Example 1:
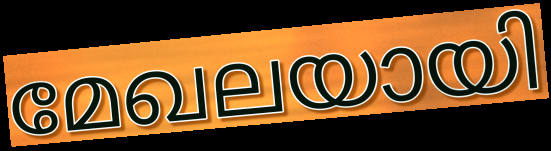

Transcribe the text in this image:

മേഖലയായി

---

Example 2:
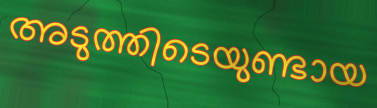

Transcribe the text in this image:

അടുത്തിടെയുണ്ടായ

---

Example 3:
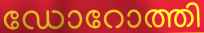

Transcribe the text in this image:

ഡോറോത്തി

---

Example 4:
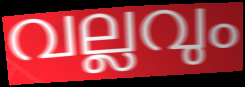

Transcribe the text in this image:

വല്ലവും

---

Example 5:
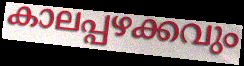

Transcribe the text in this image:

കാലപ്പഴക്കവും